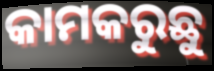
କାମକରୁଛୁ